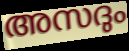
അസദും